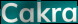
Cakra